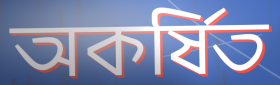
অকৰ্ষিত